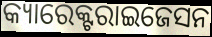
କ୍ୟାରେକ୍ଟରାଇଜେସନ